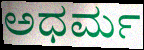
ಅಧರ್ಮ